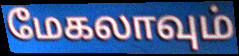
மேகலாவும்